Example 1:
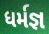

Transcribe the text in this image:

ધર્મજ્ઞ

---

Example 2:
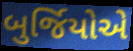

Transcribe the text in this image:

બુર્જિયોએ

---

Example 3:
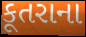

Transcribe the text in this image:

કૂતરાના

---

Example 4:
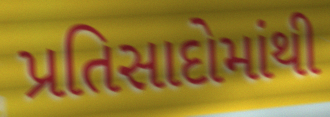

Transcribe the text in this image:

પ્રતિસાદોમાંથી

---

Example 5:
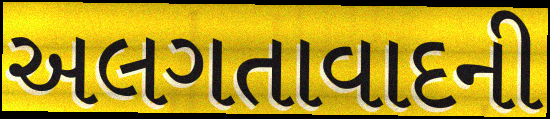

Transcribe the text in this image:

અલગતાવાદની